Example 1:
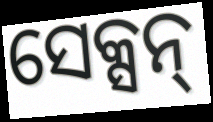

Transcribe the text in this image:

ସେକ୍ସନ୍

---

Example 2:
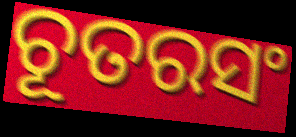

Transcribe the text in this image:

ଚୂତରସଂ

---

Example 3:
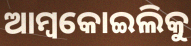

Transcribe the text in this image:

ଆମ୍ବକୋଇଲିକୁ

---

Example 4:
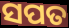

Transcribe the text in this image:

ସପତ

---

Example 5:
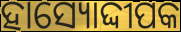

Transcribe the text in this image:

ହାସ୍ୟୋଦ୍ଦୀପକ